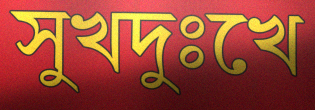
সুখদুঃখে